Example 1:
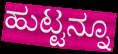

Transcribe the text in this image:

ಹುಟ್ಟನ್ನೂ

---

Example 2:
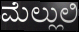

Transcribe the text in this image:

ಮೆಲ್ಲುಲಿ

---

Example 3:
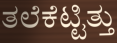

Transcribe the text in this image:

ತಲೆಕೆಟ್ಟಿತ್ತು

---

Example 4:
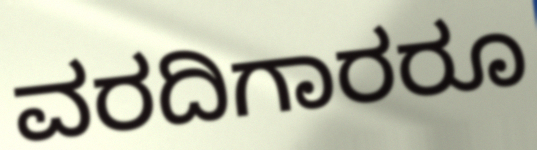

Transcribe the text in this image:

ವರದಿಗಾರರೂ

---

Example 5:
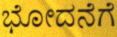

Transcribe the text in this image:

ಭೋದನೆಗೆ